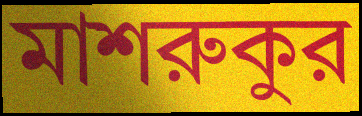
মাশরুকুর